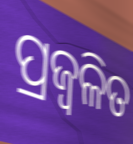
ପ୍ରଜ୍ୱଳିତ